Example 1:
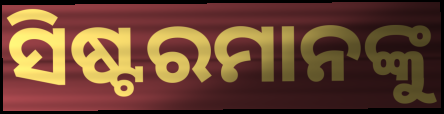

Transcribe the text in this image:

ସିଷ୍ଟରମାନଙ୍କୁ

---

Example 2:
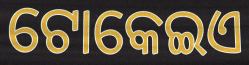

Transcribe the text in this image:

ଟୋକେଇଏ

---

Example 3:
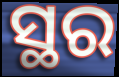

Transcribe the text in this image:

ସ୍ଥର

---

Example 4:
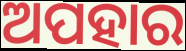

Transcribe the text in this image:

ଅପହାର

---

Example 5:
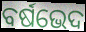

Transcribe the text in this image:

ବର୍ଷଭେଦ